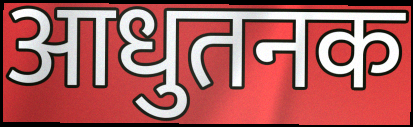
आधुतनक